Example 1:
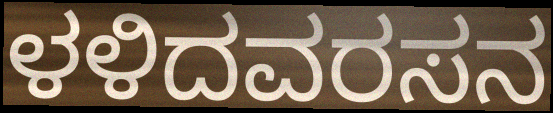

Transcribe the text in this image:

ಳಳಿದವರಸನ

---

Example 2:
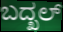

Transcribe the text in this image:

ಬದ್ಖಲ್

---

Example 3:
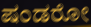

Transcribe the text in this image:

ಷಂಡರೋ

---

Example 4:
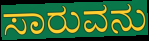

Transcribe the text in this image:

ಸಾರುವನು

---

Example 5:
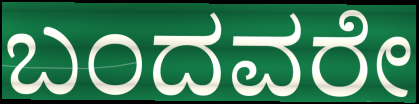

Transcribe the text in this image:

ಬಂದವರೇ